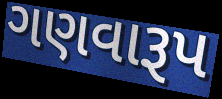
ગણવારૂપ